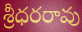
శ్రీధరరావు